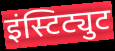
इंस्टिट्युट